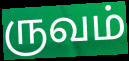
ருவம்